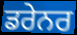
ਡਰੇਨਰ